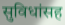
सुविधांसह